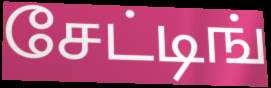
சேட்டிங்